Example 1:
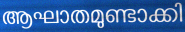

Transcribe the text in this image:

ആഘാതമുണ്ടാക്കി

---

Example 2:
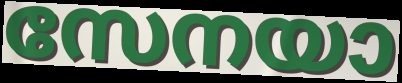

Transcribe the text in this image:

സേനയാ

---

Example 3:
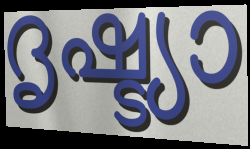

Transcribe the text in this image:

ദൃഷ്ട്യാ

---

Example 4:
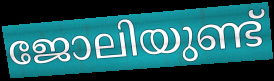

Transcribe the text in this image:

ജോലിയുണ്ട്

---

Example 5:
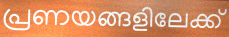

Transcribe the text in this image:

പ്രണയങ്ങളിലേക്ക്